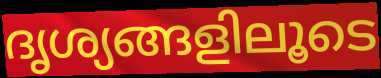
ദൃശ്യങ്ങളിലൂടെ